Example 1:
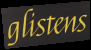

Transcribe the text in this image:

glistens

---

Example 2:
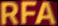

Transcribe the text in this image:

RFA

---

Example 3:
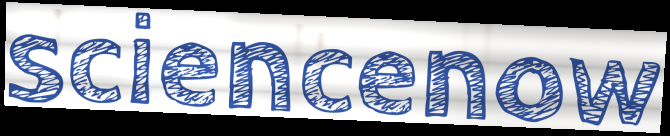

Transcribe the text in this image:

sciencenow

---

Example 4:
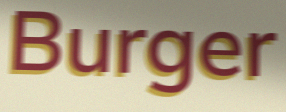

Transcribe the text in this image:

Burger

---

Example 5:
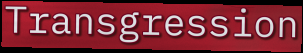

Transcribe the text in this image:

Transgression